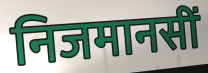
निजमानसीं